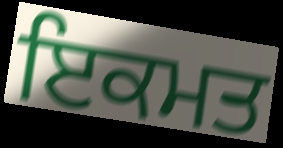
ਇਕਮਤ